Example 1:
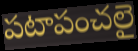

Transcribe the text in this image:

పటాపంచలై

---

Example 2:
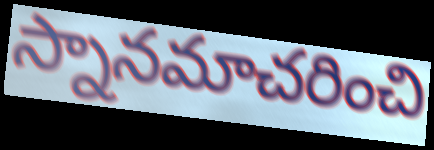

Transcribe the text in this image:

స్నానమాచరించి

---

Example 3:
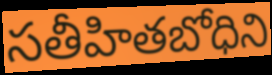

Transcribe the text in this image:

సతీహితబోధిని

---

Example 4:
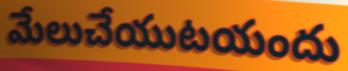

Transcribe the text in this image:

మేలుచేయుటయందు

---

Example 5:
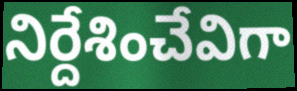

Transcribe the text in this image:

నిర్దేశించేవిగా